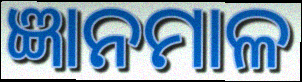
ଜ୍ଞାନମାଳ